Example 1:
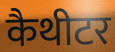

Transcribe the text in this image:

कैथीटर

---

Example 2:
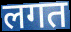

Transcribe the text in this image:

लगत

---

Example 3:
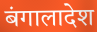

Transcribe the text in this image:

बंगालादेश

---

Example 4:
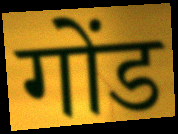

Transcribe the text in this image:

गोंड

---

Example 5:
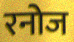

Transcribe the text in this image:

रनोज